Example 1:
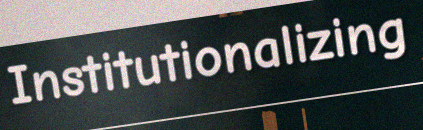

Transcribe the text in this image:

Institutionalizing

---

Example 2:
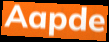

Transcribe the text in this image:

Aapde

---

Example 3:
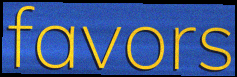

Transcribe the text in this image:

favors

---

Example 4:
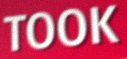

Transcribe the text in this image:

TOOK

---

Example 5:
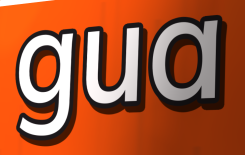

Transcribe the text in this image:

gua